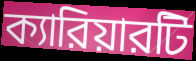
ক্যারিয়ারটি